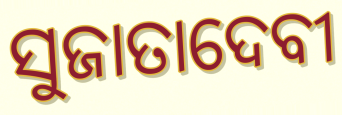
ସୁଜାତାଦେବୀ